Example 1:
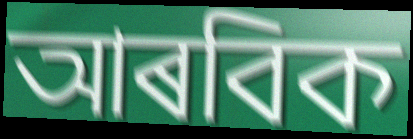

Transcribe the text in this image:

আৰবিক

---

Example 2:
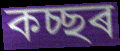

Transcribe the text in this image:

কচ্ছৰ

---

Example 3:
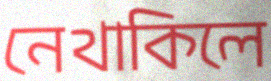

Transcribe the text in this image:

নেথাকিলে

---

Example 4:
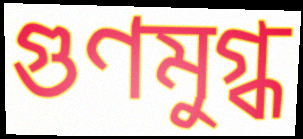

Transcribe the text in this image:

গুণমুগ্ধ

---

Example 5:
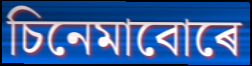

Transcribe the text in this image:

চিনেমাবোৰে